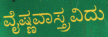
ವೈಷ್ಣವಾಸ್ತ್ರವಿದು